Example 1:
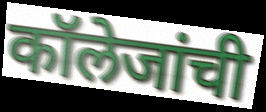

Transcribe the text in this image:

कॉलेजांची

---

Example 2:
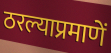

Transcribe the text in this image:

ठरल्याप्रमाणें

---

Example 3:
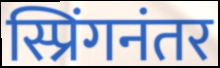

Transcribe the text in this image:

स्प्रिंगनंतर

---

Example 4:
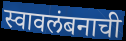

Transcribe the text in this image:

स्वावलंबनाची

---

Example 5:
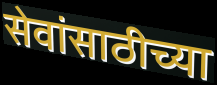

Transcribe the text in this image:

सेवांसाठीच्या